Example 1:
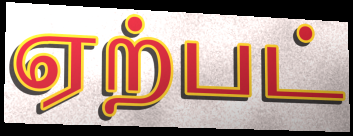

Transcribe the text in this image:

ஏற்பட்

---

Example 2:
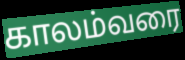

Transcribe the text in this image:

காலம்வரை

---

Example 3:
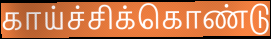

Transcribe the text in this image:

காய்ச்சிக்கொண்டு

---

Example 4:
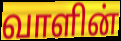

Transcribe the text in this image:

வாளின்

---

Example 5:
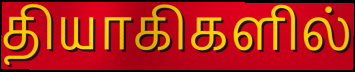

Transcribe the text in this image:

தியாகிகளில்